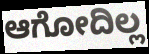
ಆಗೋದಿಲ್ಲ